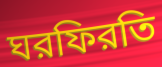
ঘরফিরতি